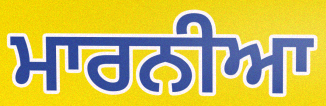
ਮਾਰਨੀਆ